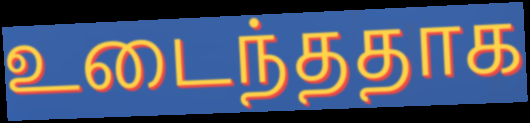
உடைந்ததாக